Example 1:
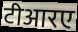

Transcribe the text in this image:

टीआरए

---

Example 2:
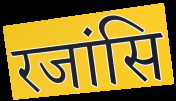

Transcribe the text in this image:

रजांसि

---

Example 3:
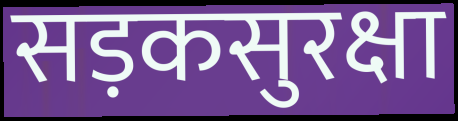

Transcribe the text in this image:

सड़कसुरक्षा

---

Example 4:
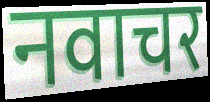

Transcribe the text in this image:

नवाचर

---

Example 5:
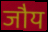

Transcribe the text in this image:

जौय